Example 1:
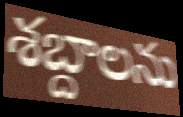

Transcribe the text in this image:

శబ్దాలను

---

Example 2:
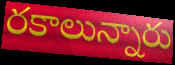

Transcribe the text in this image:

రకాలున్నారు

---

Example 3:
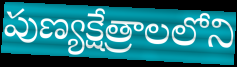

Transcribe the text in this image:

పుణ్యక్షేత్రాలలోని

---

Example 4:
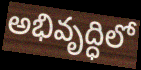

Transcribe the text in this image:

అభివృద్ధిలో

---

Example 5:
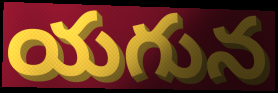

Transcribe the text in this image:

యగున